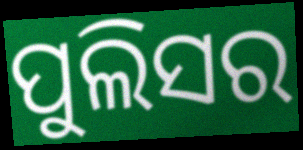
ପୁଲିସର